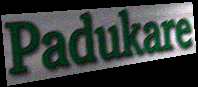
Padukare